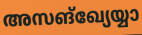
അസങ്ഖ്യേയ്യാ